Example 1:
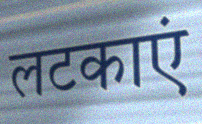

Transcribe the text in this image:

लटकाएं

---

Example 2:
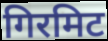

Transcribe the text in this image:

गिरमिट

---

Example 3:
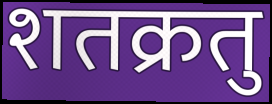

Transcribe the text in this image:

शतक्रतु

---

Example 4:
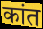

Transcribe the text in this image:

कांत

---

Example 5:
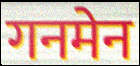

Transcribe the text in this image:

गनमेन